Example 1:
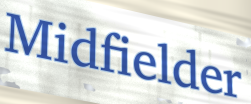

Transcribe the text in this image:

Midfielder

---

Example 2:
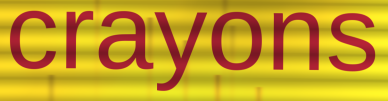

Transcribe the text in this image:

crayons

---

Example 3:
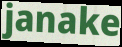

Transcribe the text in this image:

janake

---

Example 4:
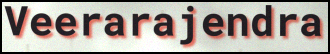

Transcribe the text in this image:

Veerarajendra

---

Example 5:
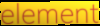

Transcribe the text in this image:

element